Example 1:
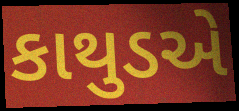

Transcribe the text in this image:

કાથુડએ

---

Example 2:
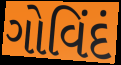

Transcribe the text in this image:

ગોવિંદં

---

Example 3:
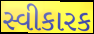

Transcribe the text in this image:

સ્વીકારક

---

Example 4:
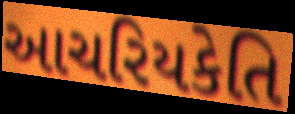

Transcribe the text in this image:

આચરિયકેતિ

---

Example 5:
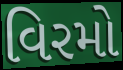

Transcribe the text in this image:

વિરમો